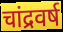
चांद्रवर्ष